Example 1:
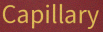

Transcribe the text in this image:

Capillary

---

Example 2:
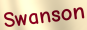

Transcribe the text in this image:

Swanson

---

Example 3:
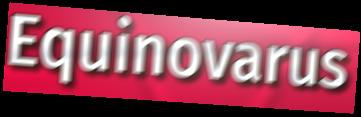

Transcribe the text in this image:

Equinovarus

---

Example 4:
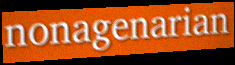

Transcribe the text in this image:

nonagenarian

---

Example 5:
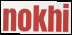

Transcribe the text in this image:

nokhi